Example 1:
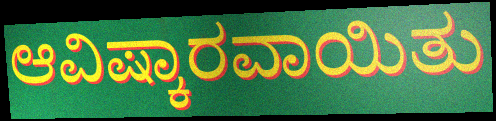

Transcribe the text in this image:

ಆವಿಷ್ಕಾರವಾಯಿತು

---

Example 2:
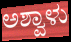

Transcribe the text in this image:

ಅಶ್ವಾಳು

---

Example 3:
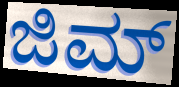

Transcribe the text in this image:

ಜಿಮ್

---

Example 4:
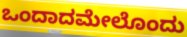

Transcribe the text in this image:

ಒಂದಾದಮೇಲೊಂದು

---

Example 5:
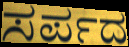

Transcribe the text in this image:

ಸರ್ಪದ